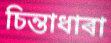
চিন্তাধাৰা